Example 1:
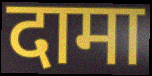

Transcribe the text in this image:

दामा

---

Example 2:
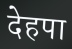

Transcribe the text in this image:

देहपा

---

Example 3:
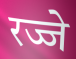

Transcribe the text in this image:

रज्जे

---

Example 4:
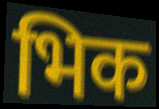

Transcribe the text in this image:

भिक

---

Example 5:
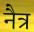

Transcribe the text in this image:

नैत्र